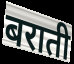
बराती